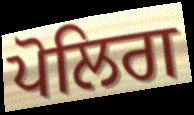
ਪੋਲਿਗ